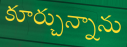
కూర్చున్నాను